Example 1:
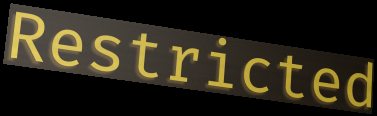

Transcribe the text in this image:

Restricted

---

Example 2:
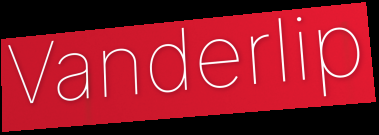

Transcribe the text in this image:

Vanderlip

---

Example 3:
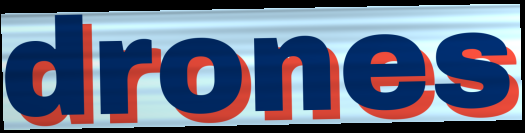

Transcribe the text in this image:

drones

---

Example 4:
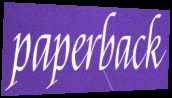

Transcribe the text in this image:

paperback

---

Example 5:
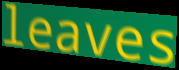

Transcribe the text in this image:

leaves